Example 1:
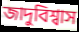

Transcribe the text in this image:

জাদুবিশ্বাস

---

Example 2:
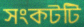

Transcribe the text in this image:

সংকটটি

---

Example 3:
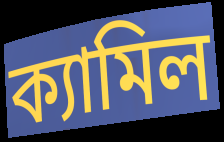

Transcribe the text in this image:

ক্যামিল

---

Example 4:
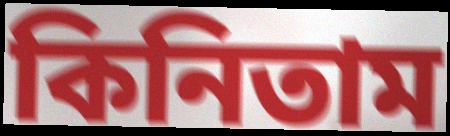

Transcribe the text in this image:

কিনিতাম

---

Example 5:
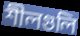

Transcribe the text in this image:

শীলগুলি